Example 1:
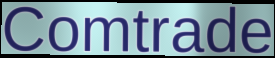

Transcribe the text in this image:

Comtrade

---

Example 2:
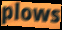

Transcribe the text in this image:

plows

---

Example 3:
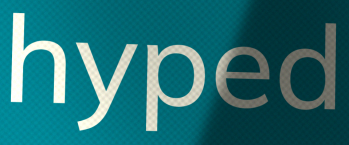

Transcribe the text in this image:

hyped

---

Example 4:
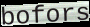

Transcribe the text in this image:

bofors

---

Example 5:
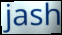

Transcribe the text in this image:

jash